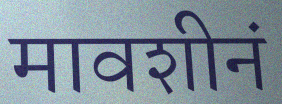
मावशीनं